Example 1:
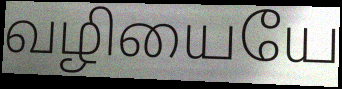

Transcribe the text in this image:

வழியையே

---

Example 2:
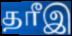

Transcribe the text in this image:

தரீஇ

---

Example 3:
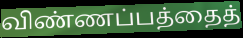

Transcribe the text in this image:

விண்ணப்பத்தைத்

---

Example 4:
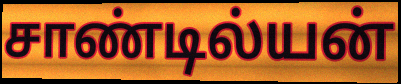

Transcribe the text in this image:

சாண்டில்யன்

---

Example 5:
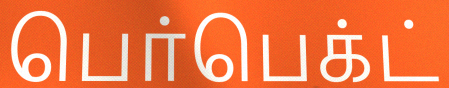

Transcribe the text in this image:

பெர்பெக்ட்